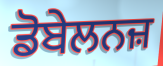
ਡੋਬੇਲਨਜ਼